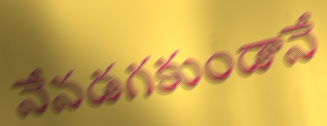
నేనడగకుండానే